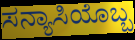
ಸನ್ಯಾಸಿಯೊಬ್ಬ